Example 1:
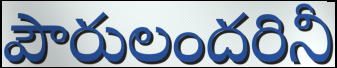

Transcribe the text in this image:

పౌరులందరినీ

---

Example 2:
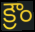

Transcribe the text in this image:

క్రౌం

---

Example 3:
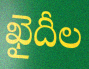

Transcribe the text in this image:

ఖైదీల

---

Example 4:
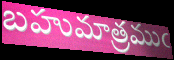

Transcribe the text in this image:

బహుమాత్రముఁ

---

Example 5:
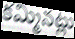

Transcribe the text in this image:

కమ్మినట్లు